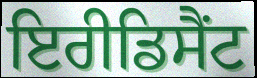
ਇਰੀਡਿਸੈਂਟ